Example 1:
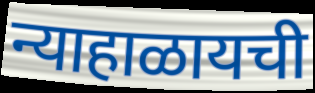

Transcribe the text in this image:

न्याहाळायची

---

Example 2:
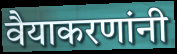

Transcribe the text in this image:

वैयाकरणांनी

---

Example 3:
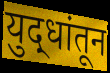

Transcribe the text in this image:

युद्धांतून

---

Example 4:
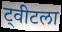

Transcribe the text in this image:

ट्वीटला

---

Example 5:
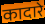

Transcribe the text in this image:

कादारे